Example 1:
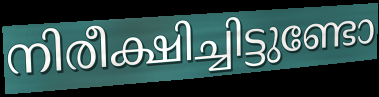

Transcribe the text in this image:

നിരീക്ഷിച്ചിട്ടുണ്ടോ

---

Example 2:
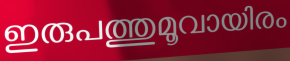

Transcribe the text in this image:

ഇരുപത്തുമൂവായിരം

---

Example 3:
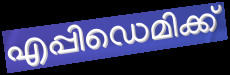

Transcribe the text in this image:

എപ്പിഡെമിക്ക്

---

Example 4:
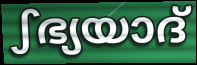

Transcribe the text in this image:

ഽഭ്യയാദ്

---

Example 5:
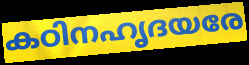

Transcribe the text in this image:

കഠിനഹൃദയരേ